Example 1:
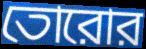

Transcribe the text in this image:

তোরোর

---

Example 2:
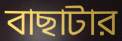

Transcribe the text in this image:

বাছাটার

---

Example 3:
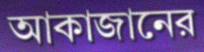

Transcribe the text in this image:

আকাজানের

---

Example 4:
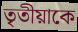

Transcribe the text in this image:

তৃতীয়াকে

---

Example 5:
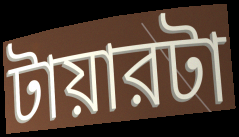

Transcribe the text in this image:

টায়ারটা